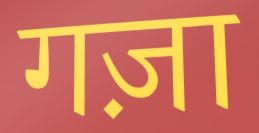
गज़ा